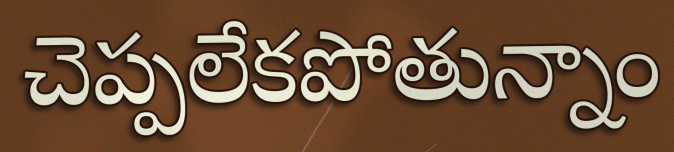
చెప్పలేకపోతున్నాం